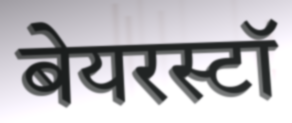
बेयरस्टॉ